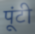
पूंटी